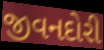
જીવનદોરી